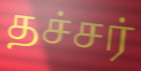
தச்சர்